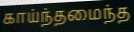
காய்ந்தமைந்த